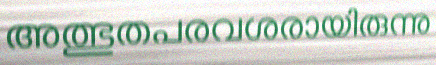
അത്ഭുതപരവശരായിരുന്നു